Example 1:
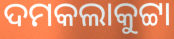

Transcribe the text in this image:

ଦମକଲାକୁଟ୍ଟା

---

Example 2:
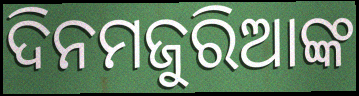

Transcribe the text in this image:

ଦିନମଜୁରିଆଙ୍କ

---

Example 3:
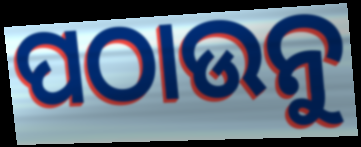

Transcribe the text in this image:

ପଠାଉନୁ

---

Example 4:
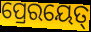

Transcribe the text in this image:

ପ୍ରେରୟେତ୍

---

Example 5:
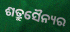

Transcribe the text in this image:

ଶତ୍ରୁସୈନ୍ୟର